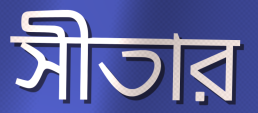
সীতার